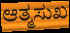
ಆತ್ಮಸುಖ